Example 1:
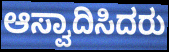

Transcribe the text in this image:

ಆಸ್ವಾದಿಸಿದರು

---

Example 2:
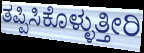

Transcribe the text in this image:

ತಪ್ಪಿಸಿಕೊಳ್ಳುತ್ತೀರಿ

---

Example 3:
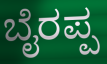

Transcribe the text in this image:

ಬೈರಪ್ಪ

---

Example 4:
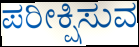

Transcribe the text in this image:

ಪರೀಕ್ಷಿಸುವ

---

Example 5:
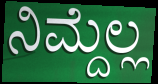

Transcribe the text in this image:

ನಿಮ್ದೆಲ್ಲ